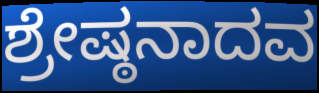
ಶ್ರೇಷ್ಠನಾದವ